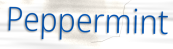
Peppermint